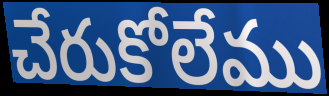
చేరుకోలేము